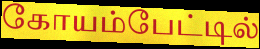
கோயம்பேட்டில்